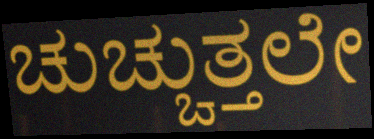
ಚುಚ್ಚುತ್ತಲೇ